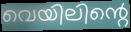
വെയിലിന്റെ